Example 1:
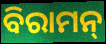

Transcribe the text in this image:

ବିରାମନ୍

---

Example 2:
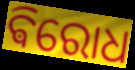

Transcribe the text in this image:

ଵିରୋଧ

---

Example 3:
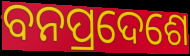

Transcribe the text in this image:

ବନପ୍ରଦେଶେ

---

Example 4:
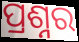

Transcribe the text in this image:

ପ୍ରଶ୍ନର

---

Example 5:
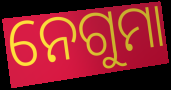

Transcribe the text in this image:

ନେଗୁମା